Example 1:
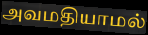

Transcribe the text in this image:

அவமதியாமல்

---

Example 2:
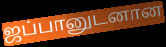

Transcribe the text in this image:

ஜப்பானுடனான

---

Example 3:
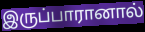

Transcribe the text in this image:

இருப்பாரானால்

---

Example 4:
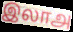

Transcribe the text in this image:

இலாஅ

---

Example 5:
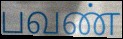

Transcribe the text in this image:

பவண்